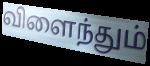
விளைந்தும்